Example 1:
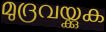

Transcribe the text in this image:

മുദ്രവയ്ക്കുക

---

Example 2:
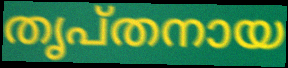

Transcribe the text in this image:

തൃപ്തനായ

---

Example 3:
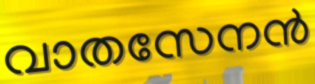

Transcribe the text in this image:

വാതസേനൻ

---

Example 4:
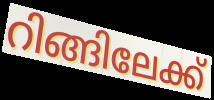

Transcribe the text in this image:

റിങ്ങിലേക്ക്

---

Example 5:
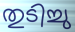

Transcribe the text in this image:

തുടിച്ചു